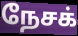
நேசக்